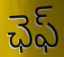
ఛెఫ్